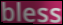
bless